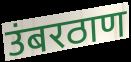
उंबरठाण